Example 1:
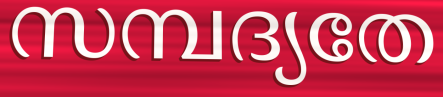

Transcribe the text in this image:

സമ്പദ്യതേ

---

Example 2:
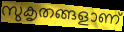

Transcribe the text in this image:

സുകൃതങ്ങളാണ്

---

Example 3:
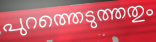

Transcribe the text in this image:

പുറത്തെടുത്തതും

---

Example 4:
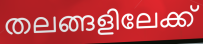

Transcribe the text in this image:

തലങ്ങളിലേക്ക്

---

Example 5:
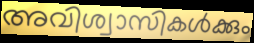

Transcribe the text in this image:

അവിശ്വാസികൾക്കും